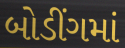
બોડીંગમાં